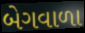
બેગવાળા